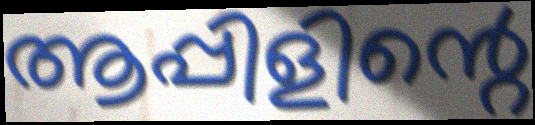
ആപ്പിളിന്റെ